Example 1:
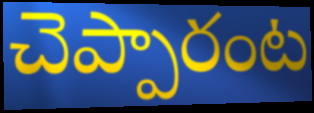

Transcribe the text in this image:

చెప్పారంట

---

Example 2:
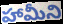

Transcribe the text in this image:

హామీని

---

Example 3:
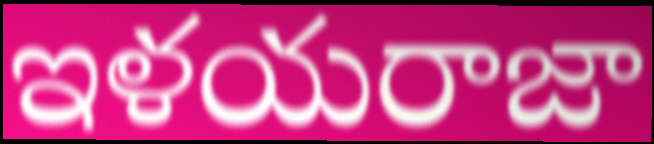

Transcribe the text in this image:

ఇళయరాజా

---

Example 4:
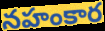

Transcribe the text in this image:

నహంకార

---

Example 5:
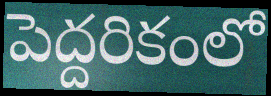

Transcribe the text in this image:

పెద్దరికంలో